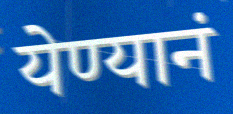
येण्यानं